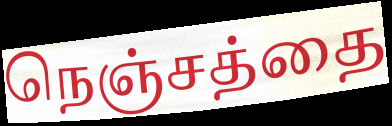
நெஞ்சத்தை